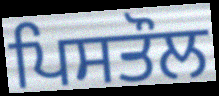
ਪਿਸਤੌਲ